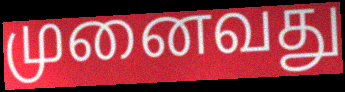
முனைவது